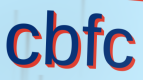
cbfc